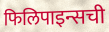
फिलिपाइन्सची